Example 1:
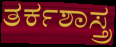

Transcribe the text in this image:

ತರ್ಕಶಾಸ್ತ್ರ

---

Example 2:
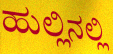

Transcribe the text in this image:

ಹುಲ್ಲಿನಲ್ಲಿ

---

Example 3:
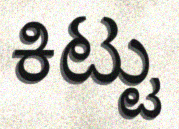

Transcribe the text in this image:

ಕಿಟ್ಟು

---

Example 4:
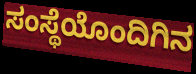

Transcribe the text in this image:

ಸಂಸ್ಥೆಯೊಂದಿಗಿನ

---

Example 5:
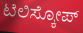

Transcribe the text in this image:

ಟೆಲಿಸ್ಕೋಪ್